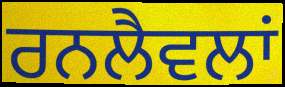
ਰਨਲੈਵਲਾਂ